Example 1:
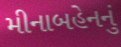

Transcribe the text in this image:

મીનાબહેનનું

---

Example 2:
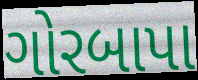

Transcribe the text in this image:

ગોરબાપા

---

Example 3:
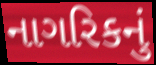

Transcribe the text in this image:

નાગરિકનું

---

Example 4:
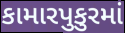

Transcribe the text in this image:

કામારપુકુરમાં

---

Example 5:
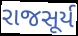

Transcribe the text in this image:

રાજસૂર્ય